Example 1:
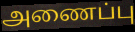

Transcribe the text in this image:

அணைப்பு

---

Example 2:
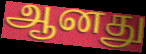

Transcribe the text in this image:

ஆனது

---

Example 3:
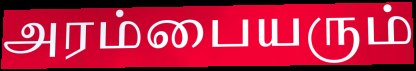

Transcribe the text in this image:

அரம்பையரும்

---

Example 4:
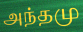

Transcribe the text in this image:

அந்தமு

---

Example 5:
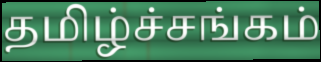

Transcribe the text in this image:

தமிழ்ச்சங்கம்